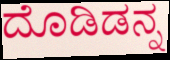
ದೊಡಿಡನ್ನ